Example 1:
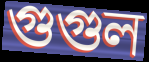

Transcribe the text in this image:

গুগুল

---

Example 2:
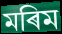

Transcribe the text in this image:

মৰিম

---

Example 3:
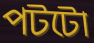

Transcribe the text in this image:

পটটো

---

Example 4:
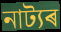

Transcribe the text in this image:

নাট্যৰ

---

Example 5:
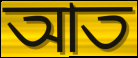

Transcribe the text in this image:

আত